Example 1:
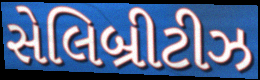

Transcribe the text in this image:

સેલિબ્રીટીઝ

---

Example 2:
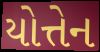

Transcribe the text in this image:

યોત્તેન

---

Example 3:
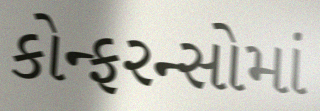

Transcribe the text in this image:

કોન્ફરન્સોમાં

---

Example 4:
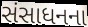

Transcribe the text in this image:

સંસાધનના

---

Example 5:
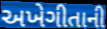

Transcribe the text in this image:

અખેગીતાની